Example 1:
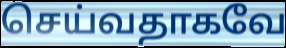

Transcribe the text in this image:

செய்வதாகவே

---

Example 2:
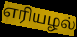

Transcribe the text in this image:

எரியழல்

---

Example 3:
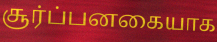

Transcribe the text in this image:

சூர்ப்பனகையாக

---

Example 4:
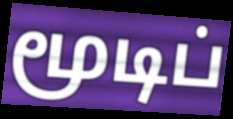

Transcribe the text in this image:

மூடிப்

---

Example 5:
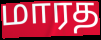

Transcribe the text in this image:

மாரத